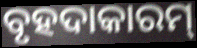
ବୃହଦାକାରମ୍